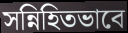
সন্নিহিতভাবে